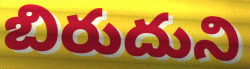
బిరుదుని